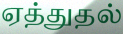
ஏத்துதல்